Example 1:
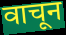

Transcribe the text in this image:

वाचून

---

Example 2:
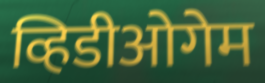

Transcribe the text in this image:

व्हिडीओगेम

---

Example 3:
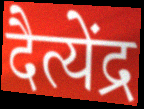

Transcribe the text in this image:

दैत्येंद्र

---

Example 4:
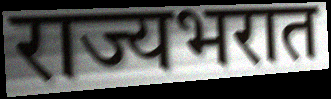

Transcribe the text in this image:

राज्यभरात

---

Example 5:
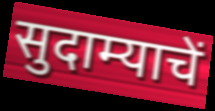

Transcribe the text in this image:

सुदाम्याचें